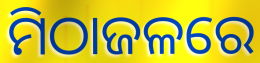
ମିଠାଜଳରେ